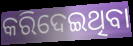
କରିଦେଇଥିବା